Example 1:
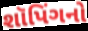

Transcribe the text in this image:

શૉપિંગનો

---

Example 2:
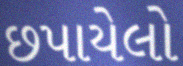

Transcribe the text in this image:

છપાયેલો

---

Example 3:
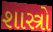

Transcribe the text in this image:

શાસ્ત્રો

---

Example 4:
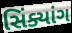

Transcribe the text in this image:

સિંક્યાંગ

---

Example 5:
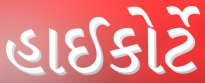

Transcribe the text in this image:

હાઈકોર્ટે